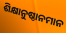
ଶିକ୍ଷାନୁଷ୍ଠାନମାନ